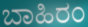
ಬಾಹಿರಂ